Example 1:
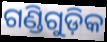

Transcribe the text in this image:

ଗଣ୍ଡିଗୁଡ଼ିକ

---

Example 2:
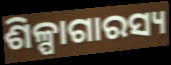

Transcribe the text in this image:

ଶିଳ୍ପାଗାରସ୍ୟ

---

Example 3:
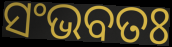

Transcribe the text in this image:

ସଂଭବତଃ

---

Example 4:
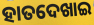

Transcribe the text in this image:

ହାତଦେଖାଇ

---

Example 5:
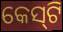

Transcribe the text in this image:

କେସ୍‌ଟି